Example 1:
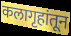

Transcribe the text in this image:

कलागृहांतून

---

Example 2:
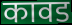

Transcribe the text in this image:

कावड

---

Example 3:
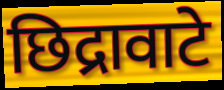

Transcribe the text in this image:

छिद्रावाटे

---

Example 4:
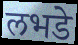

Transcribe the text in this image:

लभडे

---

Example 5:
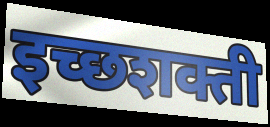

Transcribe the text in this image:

इच्छशक्ती